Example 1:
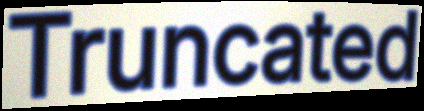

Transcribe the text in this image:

Truncated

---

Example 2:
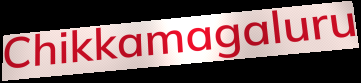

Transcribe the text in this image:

Chikkamagaluru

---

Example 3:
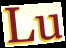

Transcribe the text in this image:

Lu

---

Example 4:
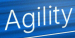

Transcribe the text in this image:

Agility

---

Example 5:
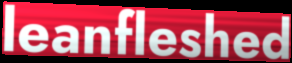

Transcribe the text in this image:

leanfleshed